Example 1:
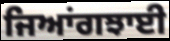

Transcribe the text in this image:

ਜਿਆਂਗਝਾਈ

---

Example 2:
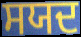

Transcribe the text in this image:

ਸਯਦ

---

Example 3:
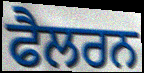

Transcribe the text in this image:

ਫੈਲਰਨ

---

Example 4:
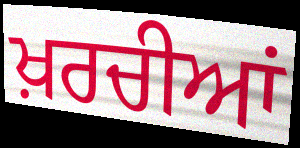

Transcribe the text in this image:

ਖ਼ਰਚੀਆਂ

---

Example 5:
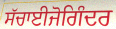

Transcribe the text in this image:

ਸੱਚਾਈਜੋਗਿੰਦਰ